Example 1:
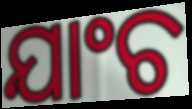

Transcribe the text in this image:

ଯାଂଚ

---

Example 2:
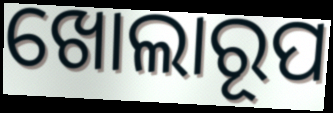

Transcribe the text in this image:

ଖୋଲାରୂପ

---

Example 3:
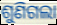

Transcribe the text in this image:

ଶୁଣିଗଲା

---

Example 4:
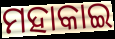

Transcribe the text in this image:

ମହାକାଇ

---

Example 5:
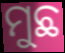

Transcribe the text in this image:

ମୁଛ